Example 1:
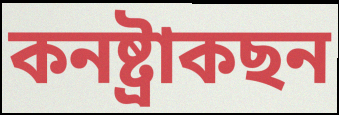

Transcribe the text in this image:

কনষ্ট্ৰাকছন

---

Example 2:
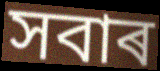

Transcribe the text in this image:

সবাৰ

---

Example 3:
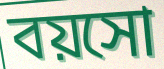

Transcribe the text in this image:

বয়সো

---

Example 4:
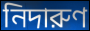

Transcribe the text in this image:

নিদাৰুণ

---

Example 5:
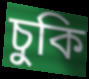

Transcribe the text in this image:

চুকি